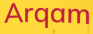
Arqam